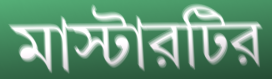
মাস্টারটির